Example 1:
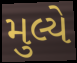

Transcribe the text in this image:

મુલ્યે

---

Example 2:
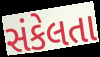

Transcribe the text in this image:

સંકેલતા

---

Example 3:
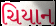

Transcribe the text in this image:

ચિયાન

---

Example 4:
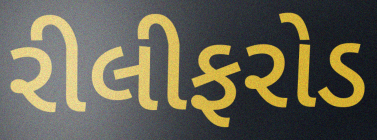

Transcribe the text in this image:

રીલીફરોડ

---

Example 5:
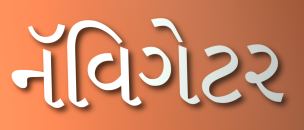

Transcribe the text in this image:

નૅવિગેટર